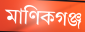
মাণিকগঞ্জ